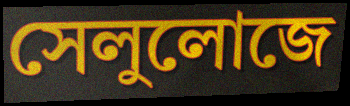
সেলুলোজে